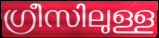
ഗ്രീസിലുള്ള